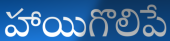
హాయిగొలిపే